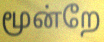
மூன்றே